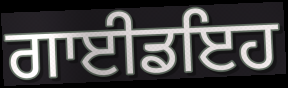
ਗਾਈਡਇਹ